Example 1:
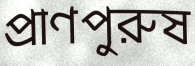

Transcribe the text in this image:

প্রাণপুরুষ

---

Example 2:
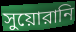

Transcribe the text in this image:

সুয়োরানি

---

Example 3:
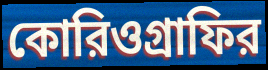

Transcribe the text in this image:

কোরিওগ্রাফির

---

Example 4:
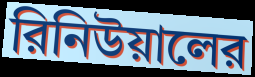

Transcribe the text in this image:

রিনিউয়ালের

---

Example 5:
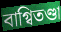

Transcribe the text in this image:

বাগ্বিতণ্ডা